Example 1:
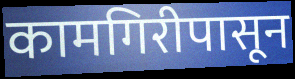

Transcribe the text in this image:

कामगिरीपासून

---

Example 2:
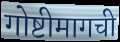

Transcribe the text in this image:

गोष्टीमागची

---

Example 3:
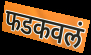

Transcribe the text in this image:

फडकवलं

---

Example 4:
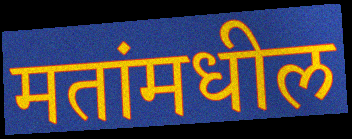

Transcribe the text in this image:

मतांमधील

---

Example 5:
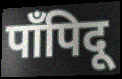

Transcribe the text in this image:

पाँपिदू